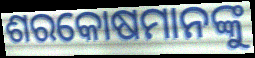
ଶରକୋଷମାନଙ୍କୁ